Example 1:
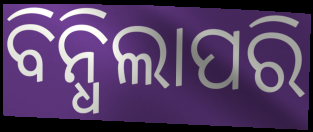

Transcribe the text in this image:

ବିନ୍ଧିଲାପରି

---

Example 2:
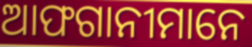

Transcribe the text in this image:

ଆଫଗାନୀମାନେ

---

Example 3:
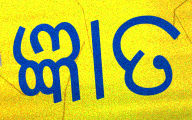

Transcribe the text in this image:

ଜ୍ଞାତ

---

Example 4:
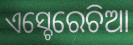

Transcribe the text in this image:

ଏସ୍ଚେରେଚିଆ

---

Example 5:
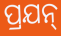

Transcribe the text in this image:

ପ୍ରଯନ୍